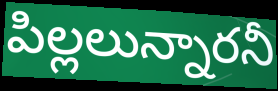
పిల్లలున్నారనీ